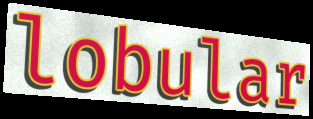
lobular